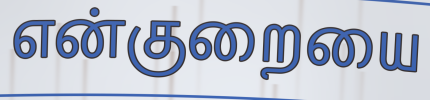
என்குறையை